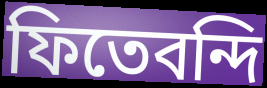
ফিতেবন্দি